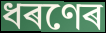
ধৰণেৰ